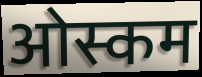
ओस्कम